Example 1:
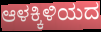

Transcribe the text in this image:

ಆಳಕ್ಕಿಳಿಯದ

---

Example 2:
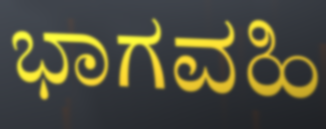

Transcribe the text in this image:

ಭಾಗವಹಿ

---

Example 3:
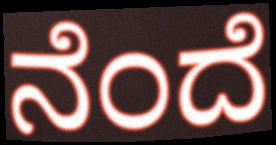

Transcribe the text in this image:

ನೆಂದೆ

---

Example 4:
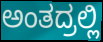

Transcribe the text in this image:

ಅಂತದ್ರಲ್ಲಿ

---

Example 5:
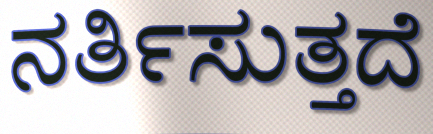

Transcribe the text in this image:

ನರ್ತಿಸುತ್ತದೆ